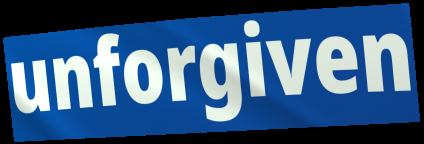
unforgiven